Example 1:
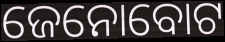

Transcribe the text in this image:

ଜେନୋବୋଟ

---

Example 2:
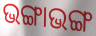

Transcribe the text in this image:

ଭଙ୍ଗାଭଙ୍ଗ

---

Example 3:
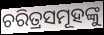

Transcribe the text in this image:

ଚରିତ୍ରସମୂହଙ୍କୁ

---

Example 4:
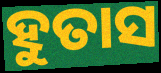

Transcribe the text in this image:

ହୁତାସ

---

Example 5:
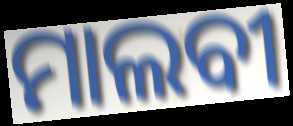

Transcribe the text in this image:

ମାଲବୀ